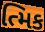
ત્મિક